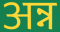
अन्न